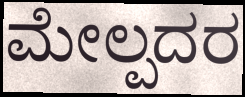
ಮೇಲ್ಪದರ